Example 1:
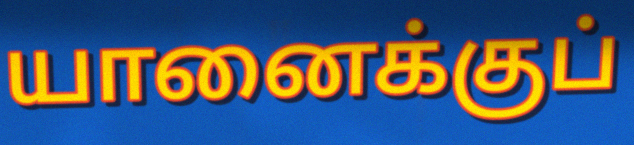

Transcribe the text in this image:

யானைக்குப்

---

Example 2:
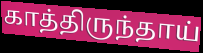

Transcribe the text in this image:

காத்திருந்தாய்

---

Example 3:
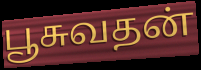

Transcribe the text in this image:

பூசுவதன்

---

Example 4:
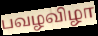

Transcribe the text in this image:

பவழவிழா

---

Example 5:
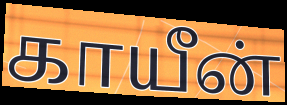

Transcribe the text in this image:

காயீன்